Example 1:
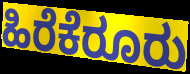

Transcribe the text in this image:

ಹಿರೆಕೆರೂರು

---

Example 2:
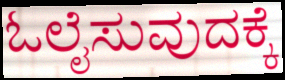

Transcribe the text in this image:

ಓಲೈಸುವುದಕ್ಕೆ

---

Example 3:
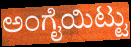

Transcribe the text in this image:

ಅಂಗೈಯಿಟ್ಟು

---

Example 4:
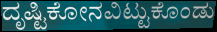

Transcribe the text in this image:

ದೃಷ್ಟಿಕೋನವಿಟ್ಟುಕೊಂಡು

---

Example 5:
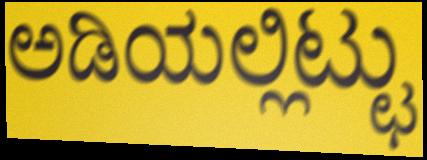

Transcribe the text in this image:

ಅಡಿಯಲ್ಲಿಟ್ಟು